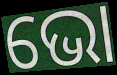
ଭୋ